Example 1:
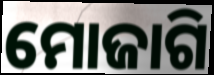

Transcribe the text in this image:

ମୋଜାଗି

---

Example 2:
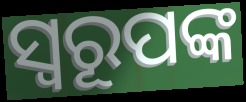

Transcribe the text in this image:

ସ୍ୱରୂପଙ୍କ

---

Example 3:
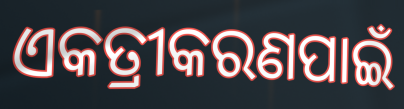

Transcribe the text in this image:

ଏକତ୍ରୀକରଣପାଇଁ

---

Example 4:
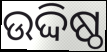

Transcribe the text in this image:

ଉଦ୍ଦିଷ୍ଠ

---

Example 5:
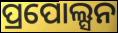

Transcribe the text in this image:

ପ୍ରପୋଲ୍ସନ